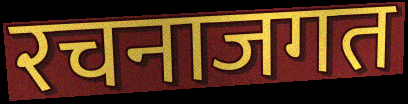
रचनाजगत